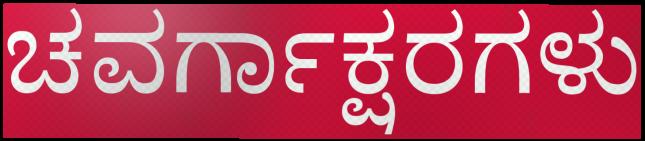
ಚವರ್ಗಾಕ್ಷರಗಳು